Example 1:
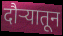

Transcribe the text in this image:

दौर्‍यातून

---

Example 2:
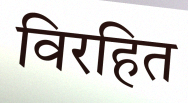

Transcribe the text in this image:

विरहित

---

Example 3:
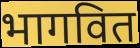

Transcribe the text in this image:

भागवित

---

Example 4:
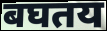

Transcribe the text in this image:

बघतय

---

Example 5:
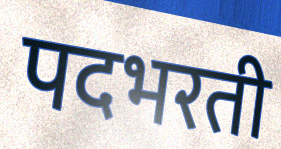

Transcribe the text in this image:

पदभरती